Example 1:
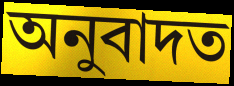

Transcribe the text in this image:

অনুবাদত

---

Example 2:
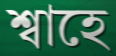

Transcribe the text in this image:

শ্বাহে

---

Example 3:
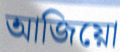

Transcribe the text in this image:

আজিয়ো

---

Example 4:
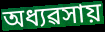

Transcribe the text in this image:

অধ্যৱসায়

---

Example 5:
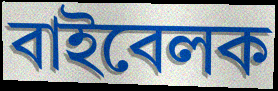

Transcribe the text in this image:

বাইবেলক